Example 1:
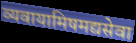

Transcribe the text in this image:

व्यवायामिषमद्यसेवा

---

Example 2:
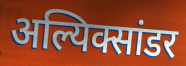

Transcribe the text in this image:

अल्यिक्सांडर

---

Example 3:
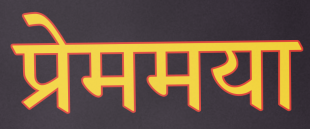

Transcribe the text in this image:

प्रेममया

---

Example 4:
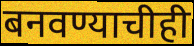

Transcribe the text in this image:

बनवण्याचीही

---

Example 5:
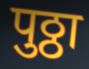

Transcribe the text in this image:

पुठ्ठा